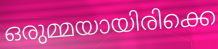
ഒരുമ്മയായിരിക്കെ